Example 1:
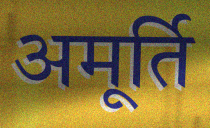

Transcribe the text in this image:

अमूर्ति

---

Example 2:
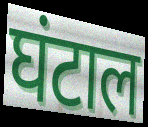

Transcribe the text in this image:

घंटाल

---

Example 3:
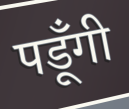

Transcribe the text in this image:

पडूँगी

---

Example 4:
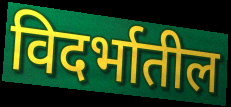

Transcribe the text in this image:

विदर्भातील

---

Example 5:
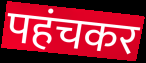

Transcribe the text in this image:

पहंचकर